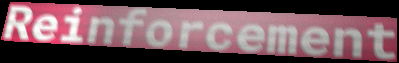
Reinforcement